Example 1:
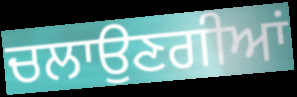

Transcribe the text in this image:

ਚਲਾਉਣਗੀਆਂ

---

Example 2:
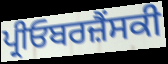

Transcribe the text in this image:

ਪ੍ਰੀਓਬਰਜ਼ੈਂਸਕੀ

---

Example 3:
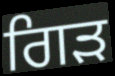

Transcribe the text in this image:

ਗਿੜ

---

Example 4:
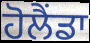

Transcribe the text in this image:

ਹੋਲੈਂਡਾ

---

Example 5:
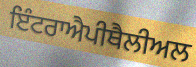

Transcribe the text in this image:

ਇੰਟਰਾਐਪੀਥੈਲੀਅਲ